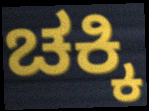
ಚಕ್ಕಿ